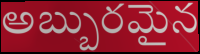
అబ్బురమైన